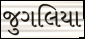
જુગલિયા